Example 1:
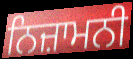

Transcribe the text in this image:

ਨਿਜ਼ਾਮਨੀ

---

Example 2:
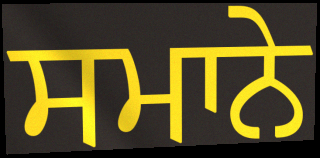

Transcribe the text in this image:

ਸਮਾਨੇ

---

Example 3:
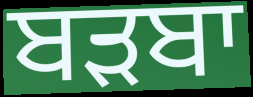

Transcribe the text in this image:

ਬੜਬਾ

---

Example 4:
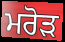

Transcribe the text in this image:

ਮਰੋੜ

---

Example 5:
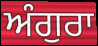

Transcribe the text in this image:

ਅੰਗੁਰਾ